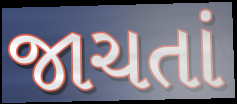
જાચતાં